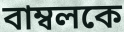
বাম্বলকে